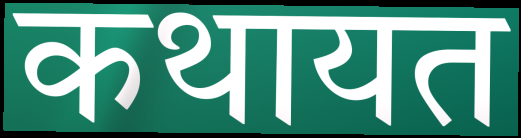
कथायत